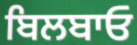
ਬਿਲਬਾਓ